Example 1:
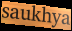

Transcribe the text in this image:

saukhya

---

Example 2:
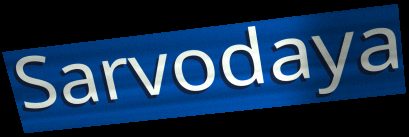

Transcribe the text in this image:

Sarvodaya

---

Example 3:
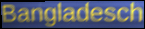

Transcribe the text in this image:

Bangladesch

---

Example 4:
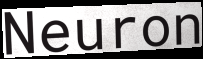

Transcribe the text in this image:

Neuron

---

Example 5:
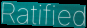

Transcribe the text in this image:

Ratified